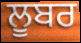
ਲੂਬਰ